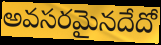
అవసరమైనదేదో